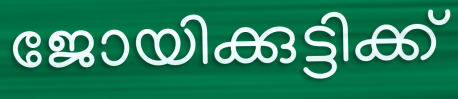
ജോയിക്കുട്ടിക്ക്